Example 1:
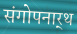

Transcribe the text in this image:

संगोपनार्थ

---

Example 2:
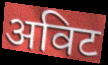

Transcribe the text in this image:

अविट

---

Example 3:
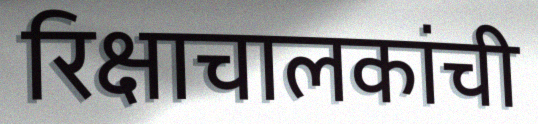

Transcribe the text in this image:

रिक्षाचालकांची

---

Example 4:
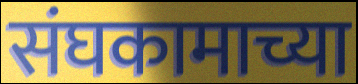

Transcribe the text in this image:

संघकामाच्या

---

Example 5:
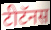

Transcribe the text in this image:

टीटॅनस